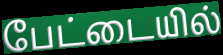
பேட்டையில்